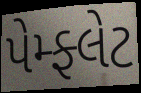
પેમ્ફ્લેટ